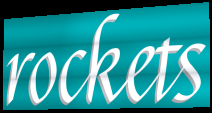
rockets